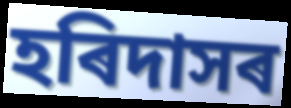
হৰিদাসৰ